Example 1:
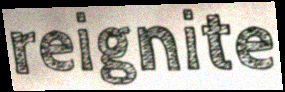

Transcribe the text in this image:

reignite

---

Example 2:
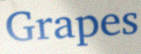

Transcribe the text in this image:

Grapes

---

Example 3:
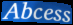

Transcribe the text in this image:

Abcess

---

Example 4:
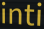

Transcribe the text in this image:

inti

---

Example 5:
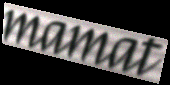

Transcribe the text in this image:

mamat